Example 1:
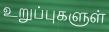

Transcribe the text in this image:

உறுப்புகளுள்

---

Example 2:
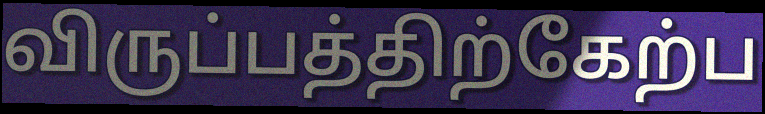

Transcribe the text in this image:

விருப்பத்திற்கேற்ப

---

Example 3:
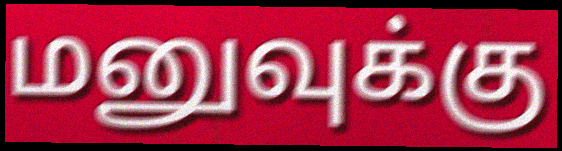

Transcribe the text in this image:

மனுவுக்கு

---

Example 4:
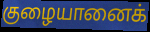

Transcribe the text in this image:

குழையானைக்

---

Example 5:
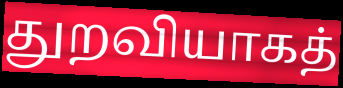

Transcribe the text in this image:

துறவியாகத்